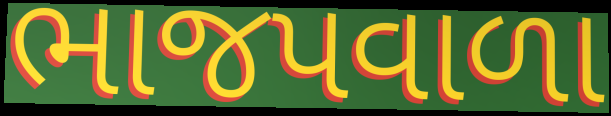
ભાજપવાળા